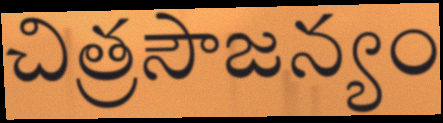
చిత్రసౌజన్యం